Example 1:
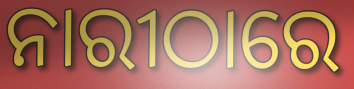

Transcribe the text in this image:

ନାରୀଠାରେ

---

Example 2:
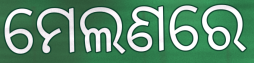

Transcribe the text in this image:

ମେଲଣରେ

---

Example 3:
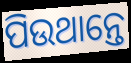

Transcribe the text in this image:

ପିଉଥାନ୍ତେ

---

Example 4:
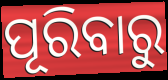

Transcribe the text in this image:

ପୂରିବାରୁ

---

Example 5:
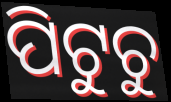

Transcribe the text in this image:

ପିଟୁଚୁ